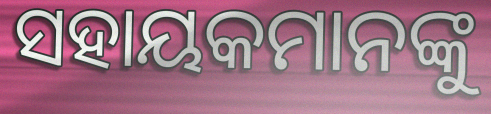
ସହାୟକମାନଙ୍କୁ